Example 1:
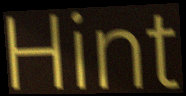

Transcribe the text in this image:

Hint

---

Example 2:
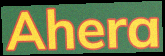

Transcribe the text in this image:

Ahera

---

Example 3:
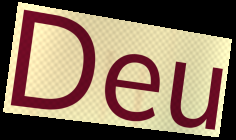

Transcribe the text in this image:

Deu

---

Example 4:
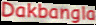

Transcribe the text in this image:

Dakbangla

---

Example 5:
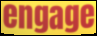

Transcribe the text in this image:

engage